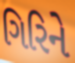
ગિરિને